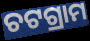
ଚଟଗ୍ରାମ